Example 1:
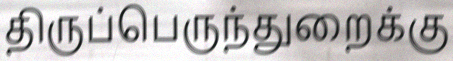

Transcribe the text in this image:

திருப்பெருந்துறைக்கு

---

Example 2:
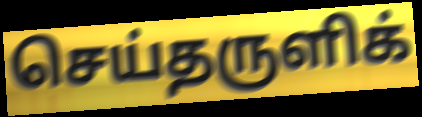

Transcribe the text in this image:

செய்தருளிக்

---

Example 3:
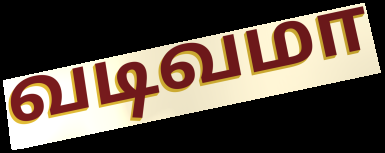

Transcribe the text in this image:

வடிவமா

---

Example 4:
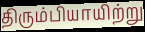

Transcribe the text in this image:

திரும்பியாயிற்று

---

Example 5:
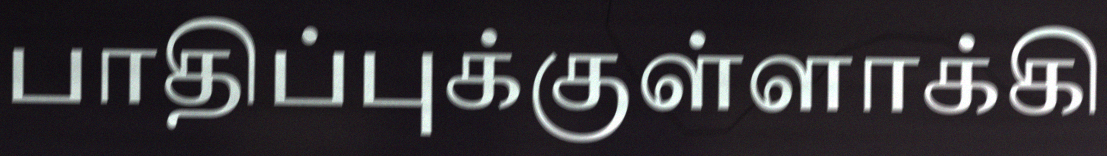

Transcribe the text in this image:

பாதிப்புக்குள்ளாக்கி